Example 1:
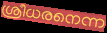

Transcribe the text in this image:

ശ്രീധരനെന്ന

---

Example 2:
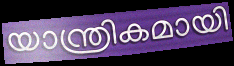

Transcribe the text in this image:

യാന്ത്രികമായി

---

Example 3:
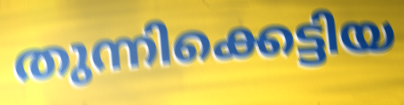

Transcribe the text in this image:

തുന്നിക്കെട്ടിയ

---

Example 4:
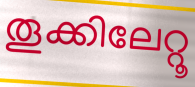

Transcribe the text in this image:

തൂക്കിലേറ്റൂ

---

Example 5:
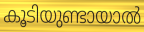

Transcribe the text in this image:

കൂടിയുണ്ടായാൽ